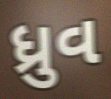
ધ્રુવ